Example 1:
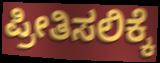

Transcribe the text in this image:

ಪ್ರೀತಿಸಲಿಕ್ಕೆ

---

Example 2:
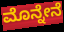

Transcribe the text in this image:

ಮೊನ್ನೇನೆ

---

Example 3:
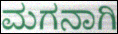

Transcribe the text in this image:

ಮಗನಾಗಿ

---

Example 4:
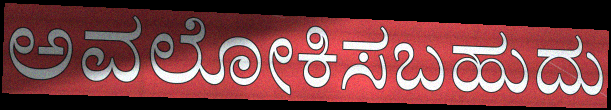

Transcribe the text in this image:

ಅವಲೋಕಿಸಬಹುದು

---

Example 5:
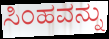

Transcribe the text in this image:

ಸಿಂಹವನ್ನು